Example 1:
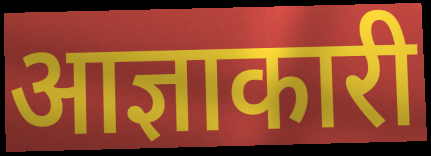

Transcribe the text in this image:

आज्ञाकारी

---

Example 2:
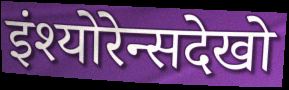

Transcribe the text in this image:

इंश्योरेन्सदेखो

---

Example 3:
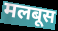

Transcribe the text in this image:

मलबूस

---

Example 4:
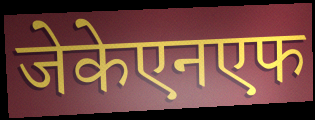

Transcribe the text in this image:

जेकेएनएफ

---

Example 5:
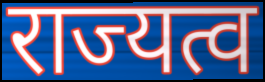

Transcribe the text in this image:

राज्यत्व